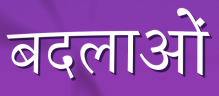
बदलाओं